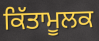
ਕਿੱਤਾਮੂਲਕ